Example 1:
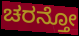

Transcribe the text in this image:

ಚರನ್ತೋ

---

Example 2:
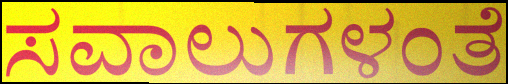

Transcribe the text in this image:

ಸವಾಲುಗಳಂತೆ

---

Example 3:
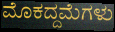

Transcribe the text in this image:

ಮೊಕದ್ದಮೆಗಳು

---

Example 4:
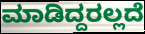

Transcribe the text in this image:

ಮಾಡಿದ್ದರಲ್ಲದೆ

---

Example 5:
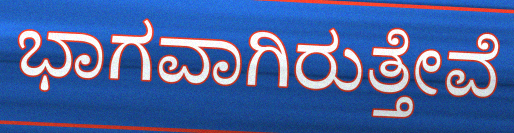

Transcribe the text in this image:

ಭಾಗವಾಗಿರುತ್ತೇವೆ